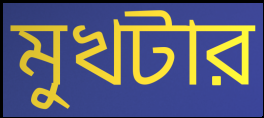
মুখটার